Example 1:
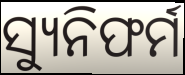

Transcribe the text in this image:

ସ୍ୟୁନିଫର୍ମ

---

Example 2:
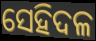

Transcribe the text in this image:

ସେହିଦଳ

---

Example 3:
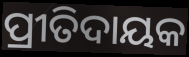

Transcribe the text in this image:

ପ୍ରୀତିଦାୟକ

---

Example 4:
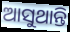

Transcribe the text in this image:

ଆସୁଥାନ୍ତି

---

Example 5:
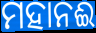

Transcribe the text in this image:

ମହାନଈ